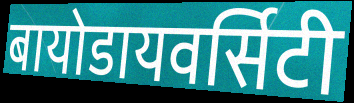
बायोडायवर्सिटी